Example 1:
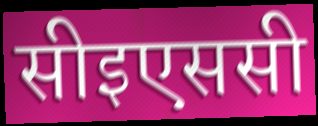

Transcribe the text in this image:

सीइएससी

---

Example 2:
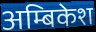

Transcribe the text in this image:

अम्बिकेश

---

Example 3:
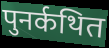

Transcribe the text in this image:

पुनर्कथित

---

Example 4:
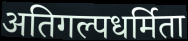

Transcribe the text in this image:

अतिगल्पधर्मिता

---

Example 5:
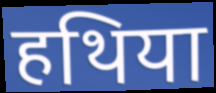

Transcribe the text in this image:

हथिया